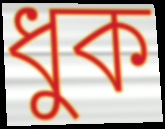
ধুক